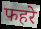
फहरे